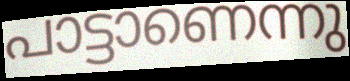
പാട്ടാണെന്നു